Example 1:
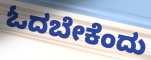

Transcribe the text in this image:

ಓದಬೇಕೆಂದು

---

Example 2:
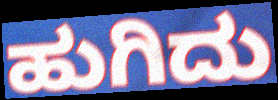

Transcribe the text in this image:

ಹುಗಿದು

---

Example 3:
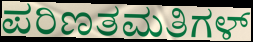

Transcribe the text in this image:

ಪರಿಣತಮತಿಗಳ್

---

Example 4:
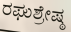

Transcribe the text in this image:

ರಘುಶ್ರೇಷ್ಠ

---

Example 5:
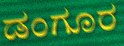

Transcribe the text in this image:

ಡಂಗೂರ